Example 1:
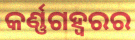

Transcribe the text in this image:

କର୍ଣ୍ଣଗହ୍ୱରର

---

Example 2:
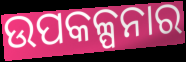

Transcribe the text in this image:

ଉପକଳ୍ପନାର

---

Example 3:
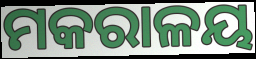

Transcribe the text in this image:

ମକରାଳୟ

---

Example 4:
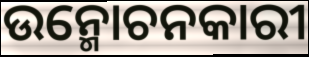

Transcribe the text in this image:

ଉନ୍ମୋଚନକାରୀ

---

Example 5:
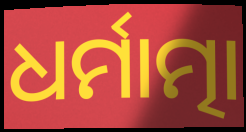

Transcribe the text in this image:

ଧର୍ମାତ୍ମା